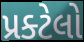
પ્રક્ટેલો